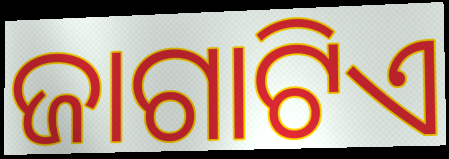
ଜାଗାଟିଏ